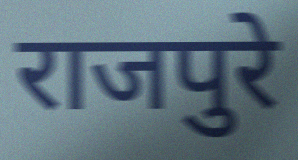
राजपुरे